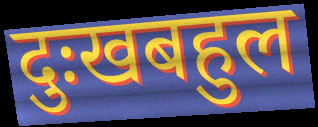
दुःखबहुल